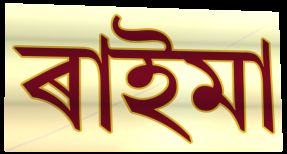
ৰাইমা